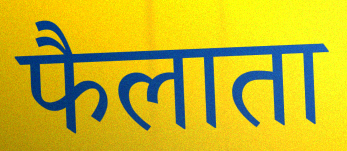
फैलाता